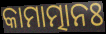
କାମାତ୍ମାନଃ